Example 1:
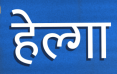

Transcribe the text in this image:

हेल्गा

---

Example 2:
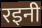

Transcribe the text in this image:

रइनी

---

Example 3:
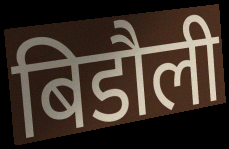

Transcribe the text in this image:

बिडौली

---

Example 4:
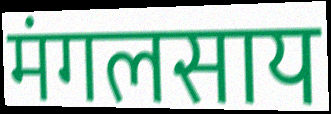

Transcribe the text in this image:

मंगलसाय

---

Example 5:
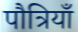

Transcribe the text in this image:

पौत्रियाँ